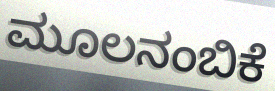
ಮೂಲನಂಬಿಕೆ